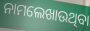
ନାମଲେଖାଉଥିବା